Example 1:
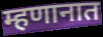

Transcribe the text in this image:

म्हणानात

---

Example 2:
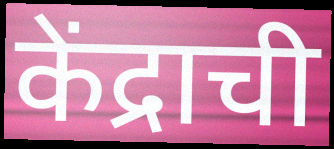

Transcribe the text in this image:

केंद्राची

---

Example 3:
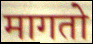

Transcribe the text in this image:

मागतो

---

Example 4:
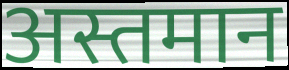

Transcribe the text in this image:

अस्तमान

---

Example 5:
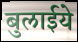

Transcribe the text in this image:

बुलाईये